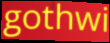
gothwi